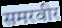
समरवीर